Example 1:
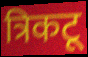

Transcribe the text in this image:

त्रिकटू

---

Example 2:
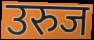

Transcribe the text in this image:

उरुज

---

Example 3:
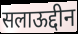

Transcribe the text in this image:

सलाऊद्दीन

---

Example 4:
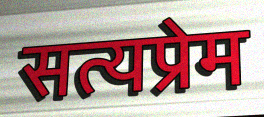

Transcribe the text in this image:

सत्यप्रेम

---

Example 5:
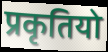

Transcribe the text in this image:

प्रकृतियो